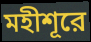
মহীশূরে